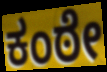
ಕಂಠೇ